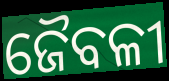
ଜୈବଳୀ